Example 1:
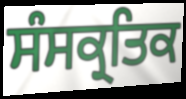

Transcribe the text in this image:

ਸੰਸਕ੍ਰਤਿਕ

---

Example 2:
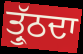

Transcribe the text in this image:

ਤ੍ਰੁੱਠਦਾ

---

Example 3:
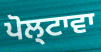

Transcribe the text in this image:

ਪੋਲ੍ਟਾਵਾ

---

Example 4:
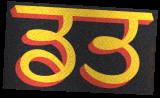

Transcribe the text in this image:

ਡਤ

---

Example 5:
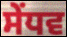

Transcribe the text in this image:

ਸੇਂਧਵ